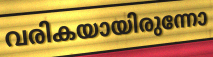
വരികയായിരുന്നോ